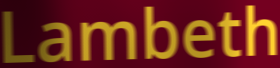
Lambeth